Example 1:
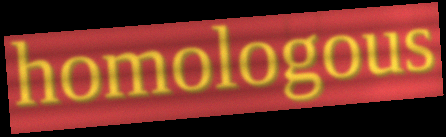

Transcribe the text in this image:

homologous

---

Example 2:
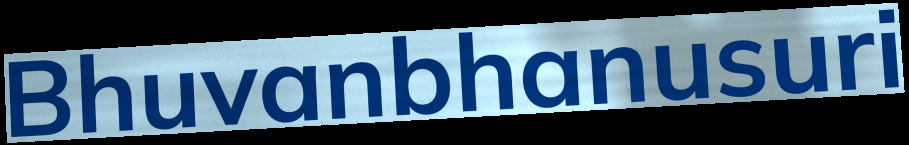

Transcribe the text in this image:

Bhuvanbhanusuri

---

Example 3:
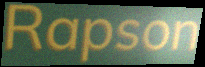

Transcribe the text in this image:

Rapson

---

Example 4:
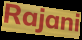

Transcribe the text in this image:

Rajani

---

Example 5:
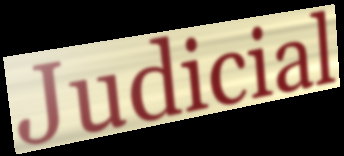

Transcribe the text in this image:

Judicial